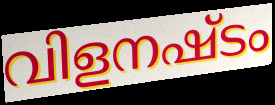
വിളനഷ്ടം